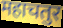
महाचतुर